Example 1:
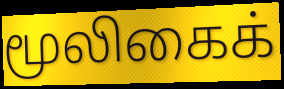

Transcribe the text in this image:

மூலிகைக்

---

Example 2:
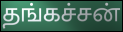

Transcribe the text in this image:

தங்கச்சன்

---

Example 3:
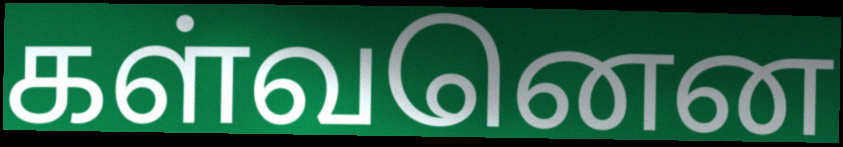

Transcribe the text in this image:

கள்வனென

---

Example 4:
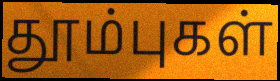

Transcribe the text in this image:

தூம்புகள்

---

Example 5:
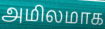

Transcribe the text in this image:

அமிலமாக